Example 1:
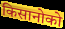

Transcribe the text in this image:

किसानोको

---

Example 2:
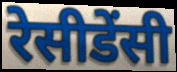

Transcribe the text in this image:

रेसीडेंसी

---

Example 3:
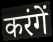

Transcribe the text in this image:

करंगें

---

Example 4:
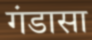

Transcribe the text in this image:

गंडासा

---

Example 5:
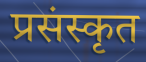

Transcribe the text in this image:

प्रसंस्कृत